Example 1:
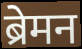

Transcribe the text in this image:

ब्रेमन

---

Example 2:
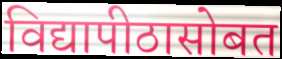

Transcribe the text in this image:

विद्यापीठासोबत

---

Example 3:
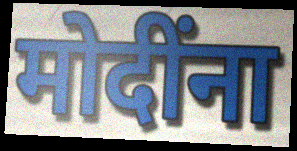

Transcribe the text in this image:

मोदींना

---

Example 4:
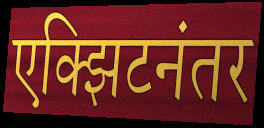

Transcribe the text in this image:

एक्झिटनंतर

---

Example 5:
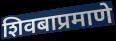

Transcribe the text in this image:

शिवबाप्रमाणे